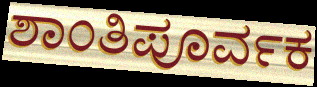
ಶಾಂತಿಪೂರ್ವಕ